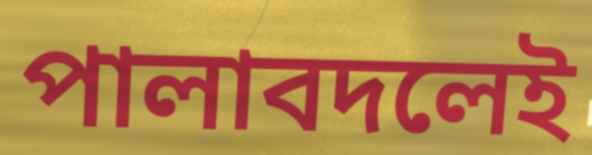
পালাবদলেই